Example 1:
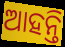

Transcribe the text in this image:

ଆହନ୍ତି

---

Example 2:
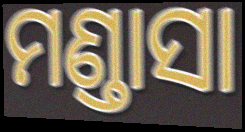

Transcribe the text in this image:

ମଣ୍ଡାସା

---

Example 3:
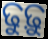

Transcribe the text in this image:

ଢୁଢ଼ୁ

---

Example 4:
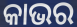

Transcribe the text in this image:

କାଭର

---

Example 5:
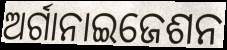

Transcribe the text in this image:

ଅର୍ଗାନାଇଜେଶନ